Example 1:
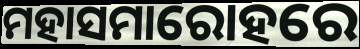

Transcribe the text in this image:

ମହାସମାରୋହରେ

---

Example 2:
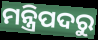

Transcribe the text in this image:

ମନ୍ତ୍ରିପଦରୁ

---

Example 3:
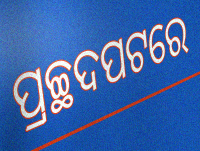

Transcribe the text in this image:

ପ୍ରଚ୍ଛଦପଟରେ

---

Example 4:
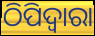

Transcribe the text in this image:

ଠିପିଦ୍ଵାରା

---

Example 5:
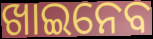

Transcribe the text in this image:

ଖାଇନେବ